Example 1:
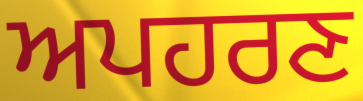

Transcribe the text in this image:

ਅਪਹਰਣ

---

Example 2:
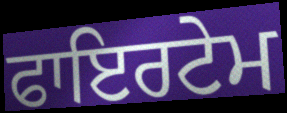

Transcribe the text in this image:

ਫਾਇਰਟੇਮ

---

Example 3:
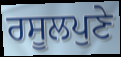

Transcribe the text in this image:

ਰਸੂਲਪੁਣੇ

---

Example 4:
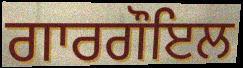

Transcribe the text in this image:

ਗਾਰਗੌਇਲ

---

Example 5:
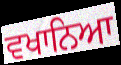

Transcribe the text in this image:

ਵਖਾਨਿਆ